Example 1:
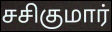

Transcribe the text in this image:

சசிகுமார்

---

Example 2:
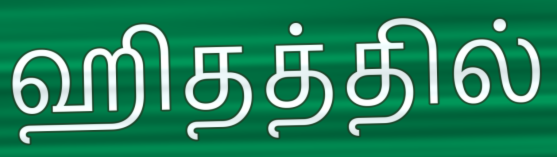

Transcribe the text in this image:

ஹிதத்தில்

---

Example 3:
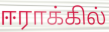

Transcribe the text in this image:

ஈராக்கில்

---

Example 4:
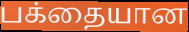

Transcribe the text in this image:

பக்தையான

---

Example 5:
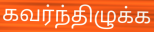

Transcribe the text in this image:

கவர்ந்திழுக்க